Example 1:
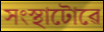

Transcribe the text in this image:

সংস্থাটোৱে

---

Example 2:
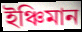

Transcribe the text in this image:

ইঞ্চিমান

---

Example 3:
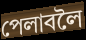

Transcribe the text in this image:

পেলাবলৈ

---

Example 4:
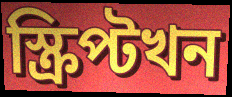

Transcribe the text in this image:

স্ক্ৰিপ্টখন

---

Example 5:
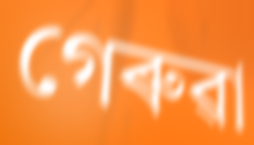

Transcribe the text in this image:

গেৰুৱা